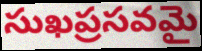
సుఖప్రసవమై